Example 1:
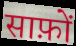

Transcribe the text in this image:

साफ़ों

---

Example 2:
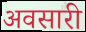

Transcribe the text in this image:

अवसारी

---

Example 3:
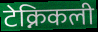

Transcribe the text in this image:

टेक्निकली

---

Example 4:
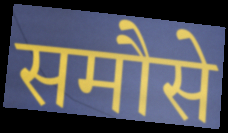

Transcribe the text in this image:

समौसे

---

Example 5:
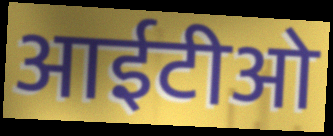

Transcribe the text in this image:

आईटीओ